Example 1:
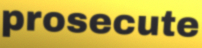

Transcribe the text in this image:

prosecute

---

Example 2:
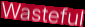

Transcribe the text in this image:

Wasteful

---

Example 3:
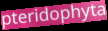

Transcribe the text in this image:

pteridophyta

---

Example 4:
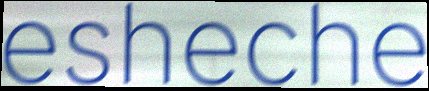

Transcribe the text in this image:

esheche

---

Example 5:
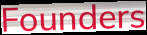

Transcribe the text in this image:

Founders